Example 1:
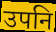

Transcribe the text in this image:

उपनि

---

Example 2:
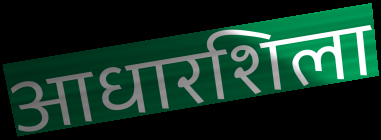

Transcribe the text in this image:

आधारशिला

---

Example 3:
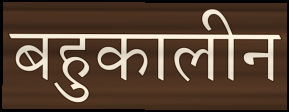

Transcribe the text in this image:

बहुकालीन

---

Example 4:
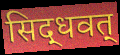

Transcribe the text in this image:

सिद्धवत्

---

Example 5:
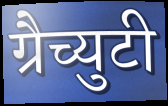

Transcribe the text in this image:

ग्रैच्युटी